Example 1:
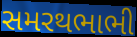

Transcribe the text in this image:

સમરથભાભી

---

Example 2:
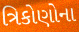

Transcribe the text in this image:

ત્રિકોણોના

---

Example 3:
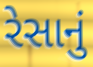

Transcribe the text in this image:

રેસાનું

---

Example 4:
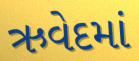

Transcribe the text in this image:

ઋવેદમાં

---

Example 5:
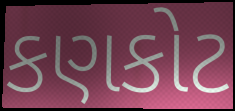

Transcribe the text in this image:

કણકોટ